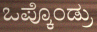
ಒಪ್ಕೊಂಡ್ರು